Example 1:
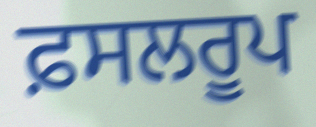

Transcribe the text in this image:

ਫ਼ਸਲਰੂਪ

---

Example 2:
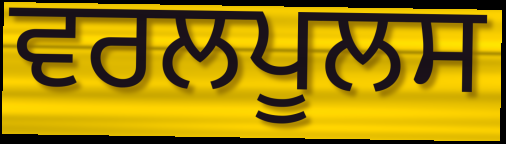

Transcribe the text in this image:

ਵਰਲਪੂਲਸ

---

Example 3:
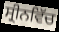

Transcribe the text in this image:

ਸ੍ਰੀਨਵਿੱਚ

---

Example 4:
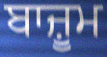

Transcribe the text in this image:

ਬਾਜ਼ੂਮ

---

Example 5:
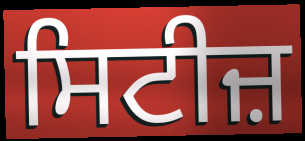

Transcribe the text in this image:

ਸਿਟੀਜ਼